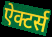
ऐक्टर्स